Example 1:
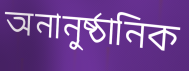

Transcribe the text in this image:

অনানুষ্ঠানিক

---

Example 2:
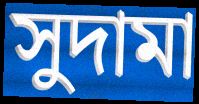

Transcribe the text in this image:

সুদামা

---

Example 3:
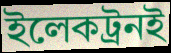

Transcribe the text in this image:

ইলেকট্রনই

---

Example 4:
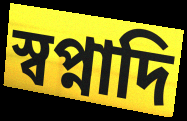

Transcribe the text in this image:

স্বপ্নাদি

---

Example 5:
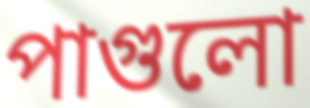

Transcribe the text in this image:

পাগুলো